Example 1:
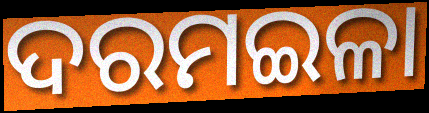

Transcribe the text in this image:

ଦରମଇଳା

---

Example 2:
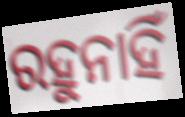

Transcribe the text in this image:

ରହୁନାହିଁ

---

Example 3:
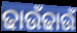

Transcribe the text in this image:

ଢାଉଁଢାଉଁ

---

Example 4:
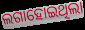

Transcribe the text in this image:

ଲଗାହୋଇଥିଲା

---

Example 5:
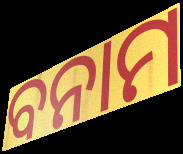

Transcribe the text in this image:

ବନାମ